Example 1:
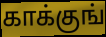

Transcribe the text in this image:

காக்குங்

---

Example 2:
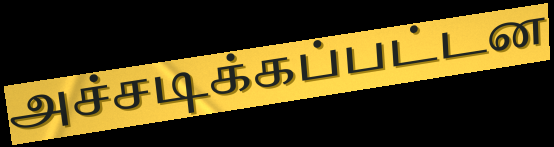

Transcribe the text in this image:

அச்சடிக்கப்பட்டன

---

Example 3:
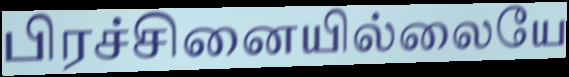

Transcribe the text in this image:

பிரச்சினையில்லையே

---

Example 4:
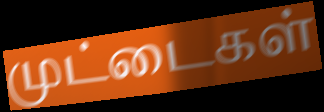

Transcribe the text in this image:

முட்டைகள்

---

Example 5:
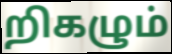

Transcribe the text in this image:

றிகழும்